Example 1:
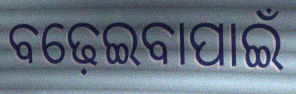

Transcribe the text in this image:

ବଢ଼େଇବାପାଇଁ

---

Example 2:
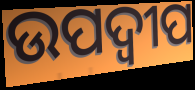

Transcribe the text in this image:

ଉପଦ୍ବୀପ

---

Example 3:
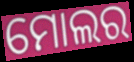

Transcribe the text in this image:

ମୋଲର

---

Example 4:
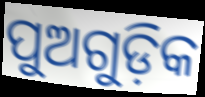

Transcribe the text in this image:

ପୁଅଗୁଡ଼ିକ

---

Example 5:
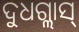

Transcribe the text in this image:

ଦୁଧଗ୍ଲାସ୍